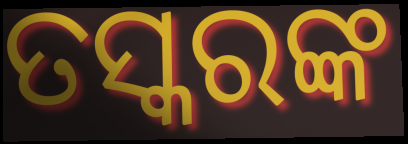
ତସ୍କରଙ୍କ